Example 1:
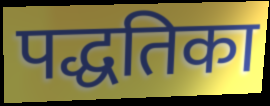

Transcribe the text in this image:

पद्धतिका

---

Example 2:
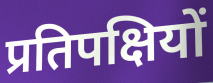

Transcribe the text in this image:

प्रतिपक्षियों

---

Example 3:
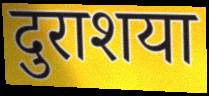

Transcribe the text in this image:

दुराशया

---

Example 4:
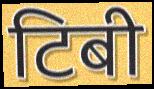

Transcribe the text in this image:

टिबी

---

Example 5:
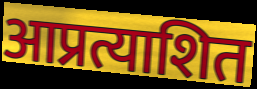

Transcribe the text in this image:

आप्रत्याशित